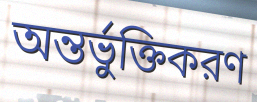
অন্তর্ভুক্তিকরণ